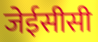
जेईसीसी